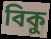
বিকু